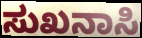
ಸುಖನಾಸಿ